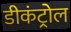
डीकंट्रोल